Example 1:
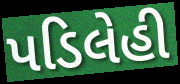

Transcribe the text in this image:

પડિલેહી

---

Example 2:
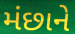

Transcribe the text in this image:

મંછાને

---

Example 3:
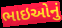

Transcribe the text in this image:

ભાઇઓનું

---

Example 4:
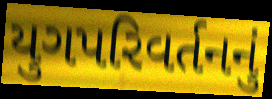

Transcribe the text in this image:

યુગપરિવર્તનનું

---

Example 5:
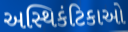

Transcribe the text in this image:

અસ્થિકંટિકાઓ